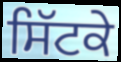
ਸਿੱਟਕੇ